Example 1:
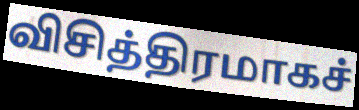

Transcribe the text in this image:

விசித்திரமாகச்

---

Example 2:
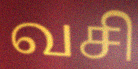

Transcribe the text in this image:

வசி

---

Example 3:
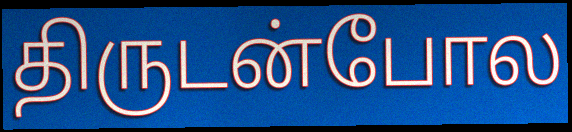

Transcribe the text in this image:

திருடன்போல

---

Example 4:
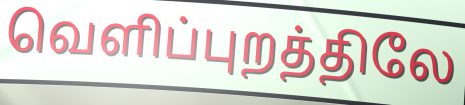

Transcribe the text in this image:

வெளிப்புறத்திலே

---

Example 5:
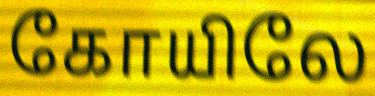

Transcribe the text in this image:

கோயிலே